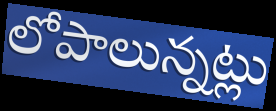
లోపాలున్నట్లు